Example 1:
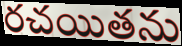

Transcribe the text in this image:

రచయితను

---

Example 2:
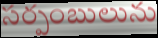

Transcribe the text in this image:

సర్పంబులును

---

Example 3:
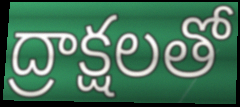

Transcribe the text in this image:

ద్రాక్షలతో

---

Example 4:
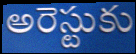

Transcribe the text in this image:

అరెస్టుకు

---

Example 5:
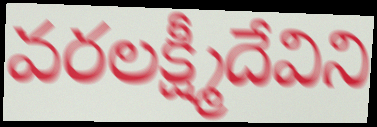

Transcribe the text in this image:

వరలక్ష్మీదేవిని